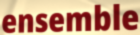
ensemble